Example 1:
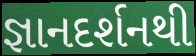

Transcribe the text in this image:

જ્ઞાનદર્શનથી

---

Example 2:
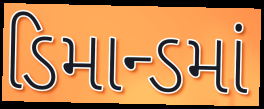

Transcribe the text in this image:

ડિમાન્ડમાં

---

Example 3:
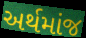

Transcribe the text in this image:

અર્થમાંજ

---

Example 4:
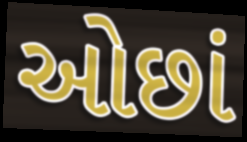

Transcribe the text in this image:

ઓછાં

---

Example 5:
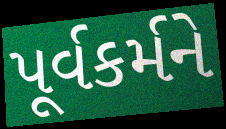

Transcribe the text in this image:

પૂર્વકર્મને